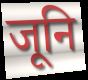
जूनि